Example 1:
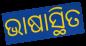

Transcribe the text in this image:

ଭାଷାସ୍ଥିତ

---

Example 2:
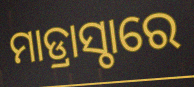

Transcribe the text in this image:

ମାଡ୍ରାସ୍ଠାରେ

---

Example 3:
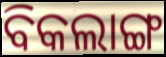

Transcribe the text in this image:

ବିକଲାଙ୍ଗ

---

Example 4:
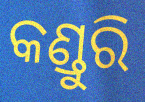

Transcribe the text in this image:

କଣ୍ଡୁରି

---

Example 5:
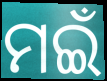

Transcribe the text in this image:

ମଇଁ